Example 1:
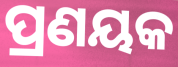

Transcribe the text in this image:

ପ୍ରଣୟକ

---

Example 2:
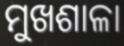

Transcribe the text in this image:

ମୁଖଶାଳା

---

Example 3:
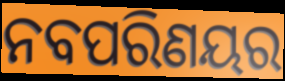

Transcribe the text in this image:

ନବପରିଣୟର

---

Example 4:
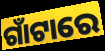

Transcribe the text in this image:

ଗାଁଟାରେ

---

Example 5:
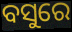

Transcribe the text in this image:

ବସୁରେ